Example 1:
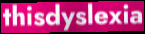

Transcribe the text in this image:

thisdyslexia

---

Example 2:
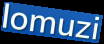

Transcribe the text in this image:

lomuzi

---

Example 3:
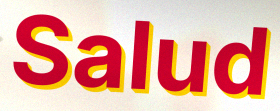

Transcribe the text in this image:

Salud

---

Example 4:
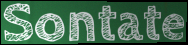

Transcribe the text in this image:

Sontate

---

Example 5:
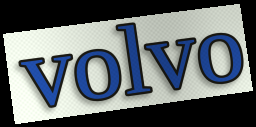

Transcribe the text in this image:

volvo